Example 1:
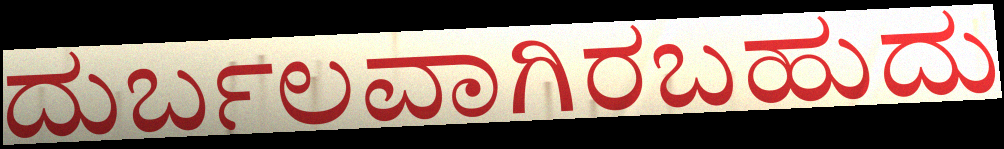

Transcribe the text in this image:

ದುರ್ಬಲವಾಗಿರಬಹುದು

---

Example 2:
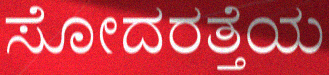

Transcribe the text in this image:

ಸೋದರತ್ತೆಯ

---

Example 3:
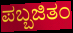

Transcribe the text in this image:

ಪಬ್ಬಜಿತಂ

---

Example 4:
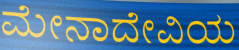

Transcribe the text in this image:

ಮೇನಾದೇವಿಯ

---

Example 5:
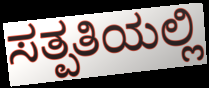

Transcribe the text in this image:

ಸತ್ಪತಿಯಲ್ಲಿ